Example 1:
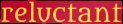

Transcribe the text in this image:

reluctant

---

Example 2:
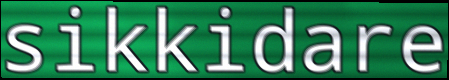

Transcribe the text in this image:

sikkidare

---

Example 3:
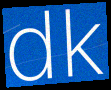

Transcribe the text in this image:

dk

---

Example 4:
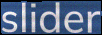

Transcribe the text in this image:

slider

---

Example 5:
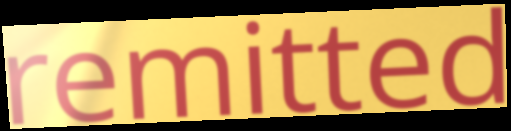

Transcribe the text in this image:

remitted